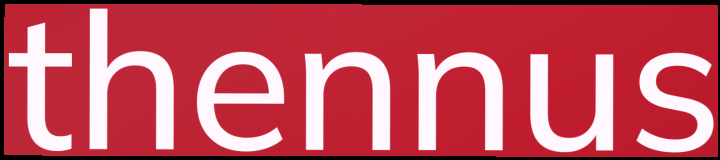
thennus